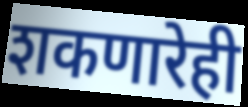
शकणारेही